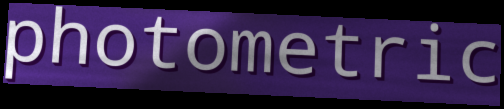
photometric